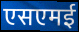
एसएमई